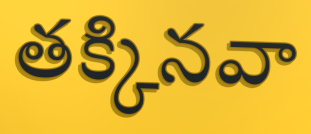
తక్కినవా